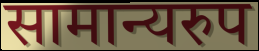
सामान्यरुप